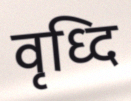
वृध्दि